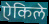
ऐकिले